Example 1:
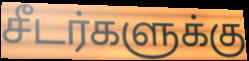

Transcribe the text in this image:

சீடர்களுக்கு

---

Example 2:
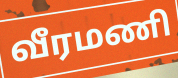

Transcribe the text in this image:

வீரமணி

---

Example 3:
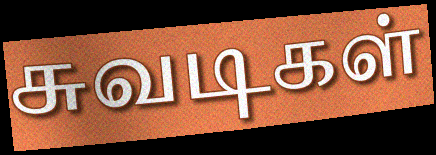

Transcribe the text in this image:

சுவடிகள்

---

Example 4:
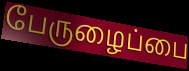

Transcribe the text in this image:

பேருழைப்பை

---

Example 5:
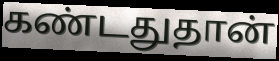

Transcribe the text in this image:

கண்டதுதான்